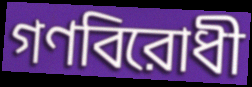
গণবিরোধী